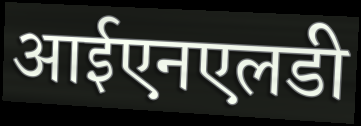
आईएनएलडी